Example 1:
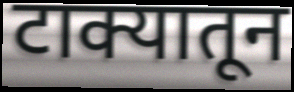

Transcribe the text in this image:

टाक्यातून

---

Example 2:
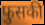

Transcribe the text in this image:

फुसकी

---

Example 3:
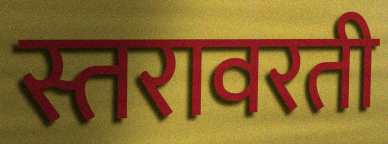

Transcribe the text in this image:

स्तरावरती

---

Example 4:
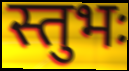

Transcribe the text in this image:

स्तुभः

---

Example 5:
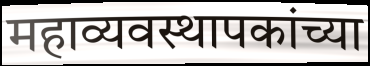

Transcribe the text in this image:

महाव्यवस्थापकांच्या